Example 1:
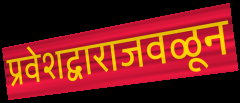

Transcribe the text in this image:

प्रवेशद्वाराजवळून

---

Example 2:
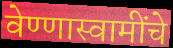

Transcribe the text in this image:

वेण्णास्वामींचे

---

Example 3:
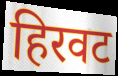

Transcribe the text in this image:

हिरवट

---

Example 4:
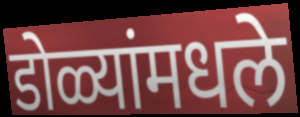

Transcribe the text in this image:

डोळ्यांमधले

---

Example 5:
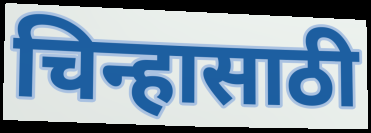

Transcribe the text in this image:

चिन्हासाठी